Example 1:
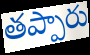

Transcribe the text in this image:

తప్పారు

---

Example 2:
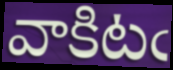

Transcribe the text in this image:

వాకిటఁ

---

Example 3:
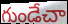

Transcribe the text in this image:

గుండేచా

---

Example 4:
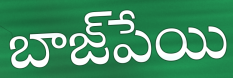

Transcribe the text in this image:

బాజ్‌పేయి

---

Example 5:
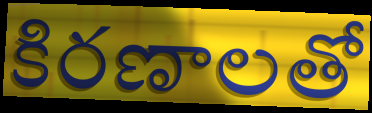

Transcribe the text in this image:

కిరణాలతో